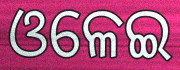
ଓଳେଇ